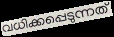
വധിക്കപ്പെടുന്നത്